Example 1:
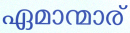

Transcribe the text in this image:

ഏമാന്മാര്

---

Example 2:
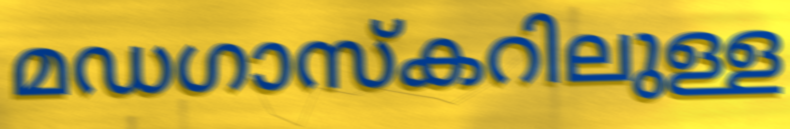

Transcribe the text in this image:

മഡഗാസ്കറിലുള്ള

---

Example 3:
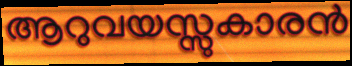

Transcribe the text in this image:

ആറുവയസ്സുകാരൻ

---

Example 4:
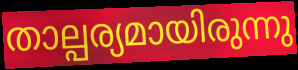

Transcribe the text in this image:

താല്പര്യമായിരുന്നു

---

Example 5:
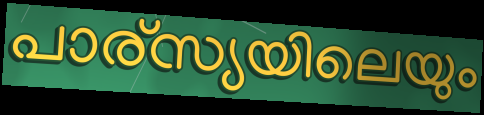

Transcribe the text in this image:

പാര്സ്യയിലെയും